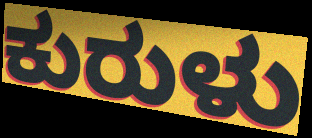
ಕುರುಳು